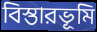
বিস্তারভূমি